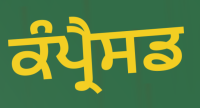
ਕੰਪ੍ਰੈਸਡ